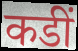
कडीं